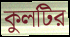
কুলটির